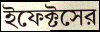
ইফেক্টসের